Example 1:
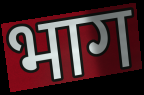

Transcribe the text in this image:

भाग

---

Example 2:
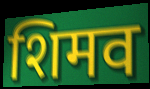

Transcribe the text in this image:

शिमव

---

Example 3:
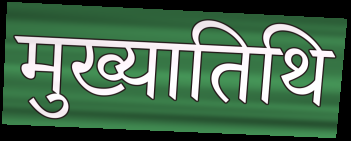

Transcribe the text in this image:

मुख्यातिथि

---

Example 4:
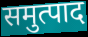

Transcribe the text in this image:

समुत्पाद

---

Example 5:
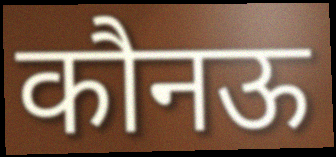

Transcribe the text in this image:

कौनऊ